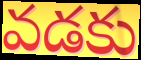
వడకు